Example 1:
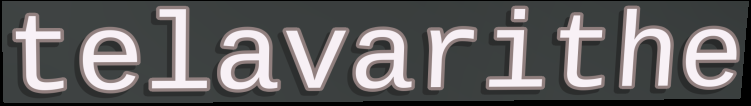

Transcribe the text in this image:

telavarithe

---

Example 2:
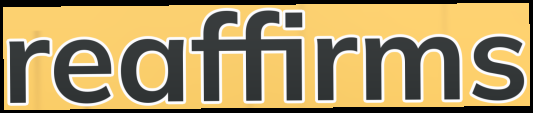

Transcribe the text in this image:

reaffirms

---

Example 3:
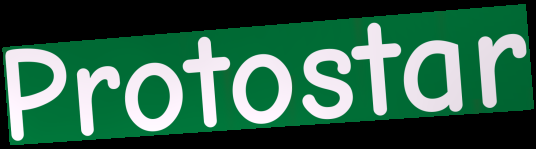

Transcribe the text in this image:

Protostar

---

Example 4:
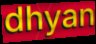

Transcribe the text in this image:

dhyan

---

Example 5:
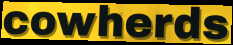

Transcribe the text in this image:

cowherds